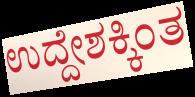
ಉದ್ದೇಶಕ್ಕಿಂತ